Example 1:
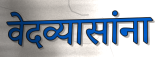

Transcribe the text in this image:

वेदव्यासांना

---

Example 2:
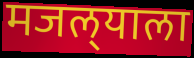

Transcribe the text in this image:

मजल्याला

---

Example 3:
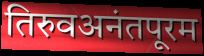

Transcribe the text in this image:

तिरुवअनंतपूरम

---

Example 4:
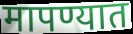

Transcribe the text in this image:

मापण्यात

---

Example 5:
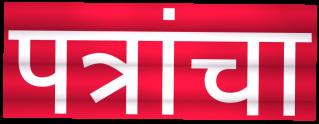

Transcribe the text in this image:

पत्रांचा